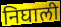
निघाली